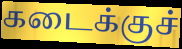
கடைக்குச்